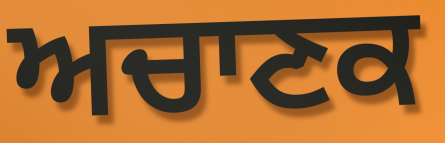
ਅਚਾਣਕ